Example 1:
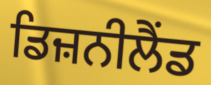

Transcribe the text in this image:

ਡਿਜ਼ਨੀਲੈਂਡ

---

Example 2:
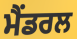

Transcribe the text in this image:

ਮੈਂਡਰਲ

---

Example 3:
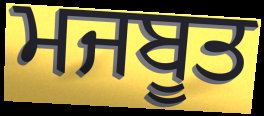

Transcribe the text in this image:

ਮਜਬੂਤ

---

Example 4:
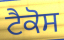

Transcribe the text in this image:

ਟੈਕੋਸ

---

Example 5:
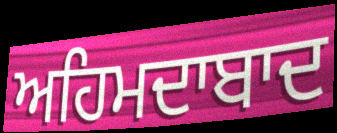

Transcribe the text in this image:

ਅਹਿਮਦਾਬਾਦ